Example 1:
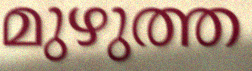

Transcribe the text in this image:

മുഴുത്ത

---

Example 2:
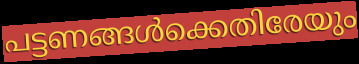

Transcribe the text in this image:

പട്ടണങ്ങൾക്കെതിരേയും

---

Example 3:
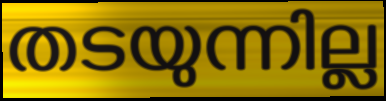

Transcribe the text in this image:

തടയുന്നില്ല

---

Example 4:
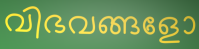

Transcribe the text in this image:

വിഭവങ്ങളോ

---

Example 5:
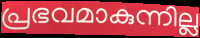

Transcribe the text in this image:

പ്രഭവമാകുന്നില്ല